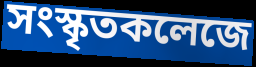
সংস্কৃতকলেজে